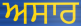
ਅਸਾਰ